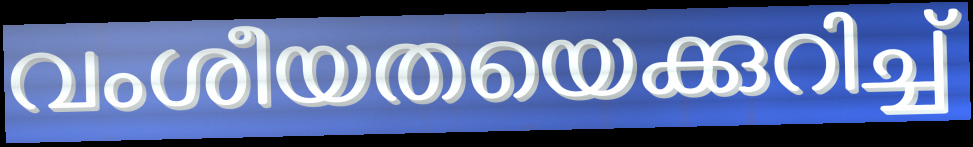
വംശീയതയെക്കുറിച്ച്